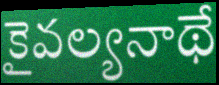
కైవల్యనాథే